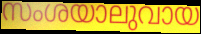
സംശയാലുവായ